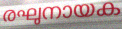
രഘുനായക